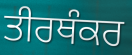
ਤੀਰਥੰਕਰ